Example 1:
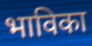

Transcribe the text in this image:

भाविका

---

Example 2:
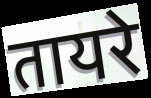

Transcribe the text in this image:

तायरे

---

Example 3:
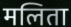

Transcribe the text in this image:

मलिता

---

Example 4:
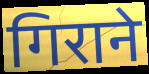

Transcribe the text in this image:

गिराने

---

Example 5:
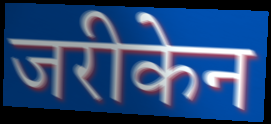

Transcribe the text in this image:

जरीकेन